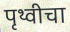
पृथ्वीचा